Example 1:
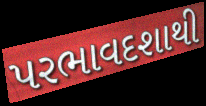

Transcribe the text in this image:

પરભાવદશાથી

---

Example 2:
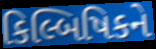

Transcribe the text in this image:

કિલ્બિષિકને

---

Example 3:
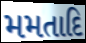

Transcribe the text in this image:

મમતાદિ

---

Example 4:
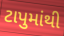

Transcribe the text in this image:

ટાપુમાંથી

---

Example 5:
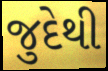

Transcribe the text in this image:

જુદેથી